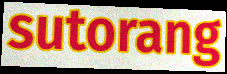
sutorang